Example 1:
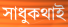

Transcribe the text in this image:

সাধুকথাই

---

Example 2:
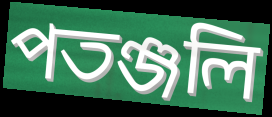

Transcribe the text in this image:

পতঞ্জলি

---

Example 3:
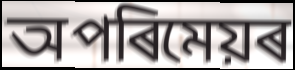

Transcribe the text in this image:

অপৰিমেয়ৰ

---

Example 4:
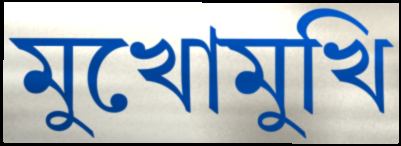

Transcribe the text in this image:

মুখোমুখি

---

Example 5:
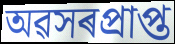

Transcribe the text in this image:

অৱসৰপ্ৰাপ্ত